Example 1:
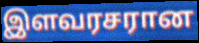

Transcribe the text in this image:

இளவரசரான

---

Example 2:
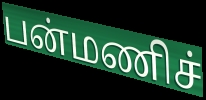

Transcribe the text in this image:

பன்மணிச்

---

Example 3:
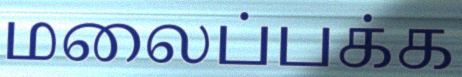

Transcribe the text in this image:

மலைப்பக்க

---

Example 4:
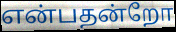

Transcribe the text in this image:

என்பதன்றோ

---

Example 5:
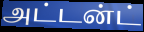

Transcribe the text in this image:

அட்டன்ட்